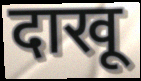
दाखू